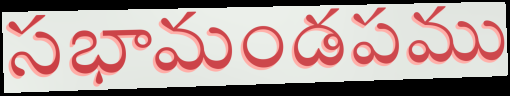
సభామండపము